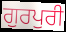
ਗੁਰਪੁਰੀ